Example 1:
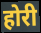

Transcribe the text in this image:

होरी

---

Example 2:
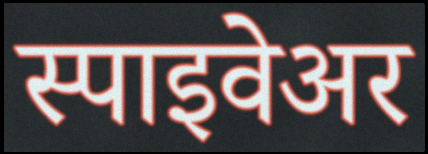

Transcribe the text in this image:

स्पाइवेअर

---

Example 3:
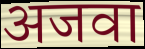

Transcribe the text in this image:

अजवा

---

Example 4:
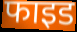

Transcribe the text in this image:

फाइड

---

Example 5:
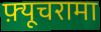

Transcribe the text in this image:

फ़्यूचरामा